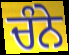
ਚੰਨੇ